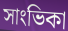
সাংভিকা